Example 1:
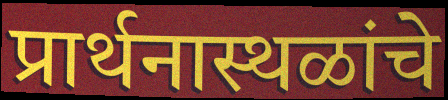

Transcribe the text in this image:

प्रार्थनास्थळांचे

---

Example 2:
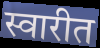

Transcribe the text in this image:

स्वारीत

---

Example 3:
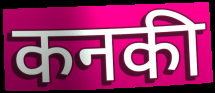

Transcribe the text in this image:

कनकी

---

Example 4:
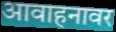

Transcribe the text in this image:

आवाहनावर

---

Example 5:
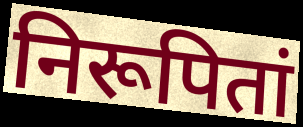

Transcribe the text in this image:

निरूपितां